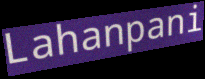
Lahanpani